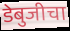
डेबुजीचा